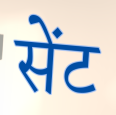
सेंट